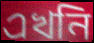
এখনি